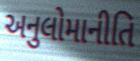
અનુલોમાનીતિ